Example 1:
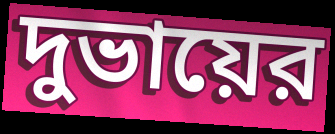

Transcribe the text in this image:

দুভায়ের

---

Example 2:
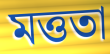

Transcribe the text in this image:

মত্ততা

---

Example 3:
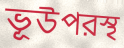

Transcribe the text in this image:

ভূউপরস্থ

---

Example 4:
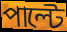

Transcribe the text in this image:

পাল্টে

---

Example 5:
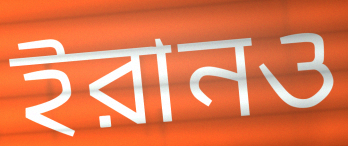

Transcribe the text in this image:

ইরানও